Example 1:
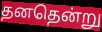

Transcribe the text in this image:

தனதென்று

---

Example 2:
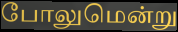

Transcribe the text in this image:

போலுமென்று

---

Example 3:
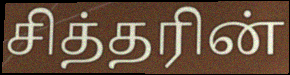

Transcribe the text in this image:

சித்தரின்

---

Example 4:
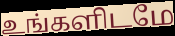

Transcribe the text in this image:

உங்களிடமே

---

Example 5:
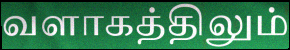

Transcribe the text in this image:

வளாகத்திலும்